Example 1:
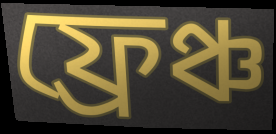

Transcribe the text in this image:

ফ্ৰেঞ্চ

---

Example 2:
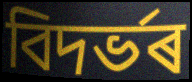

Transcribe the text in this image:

বিদৰ্ভৰ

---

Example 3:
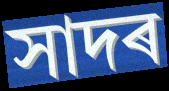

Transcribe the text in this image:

সাদৰ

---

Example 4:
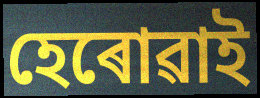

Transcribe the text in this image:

হেৰোৱাই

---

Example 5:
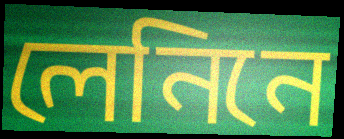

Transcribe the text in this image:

লেনিনে